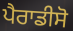
ਪੈਰਾਡੀਸੋ